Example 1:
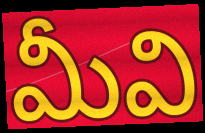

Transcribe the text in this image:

మీవి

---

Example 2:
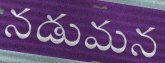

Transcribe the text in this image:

నడుమన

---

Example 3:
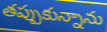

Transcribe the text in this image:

తప్పుకున్నాను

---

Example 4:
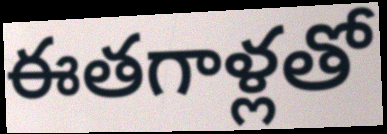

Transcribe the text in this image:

ఈతగాళ్లతో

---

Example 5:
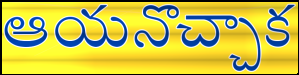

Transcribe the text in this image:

ఆయనొచ్చాక